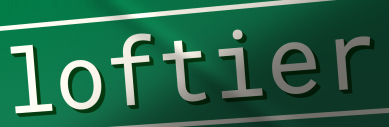
loftier